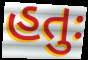
હતુઃ